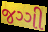
જગ્ગી